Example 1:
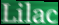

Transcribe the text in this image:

Lilac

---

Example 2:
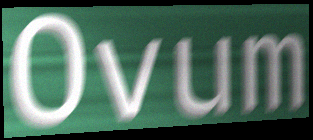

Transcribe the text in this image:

Ovum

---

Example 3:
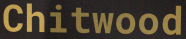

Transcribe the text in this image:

Chitwood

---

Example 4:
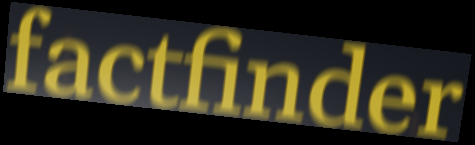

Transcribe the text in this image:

factfinder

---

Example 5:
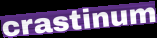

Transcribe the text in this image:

crastinum